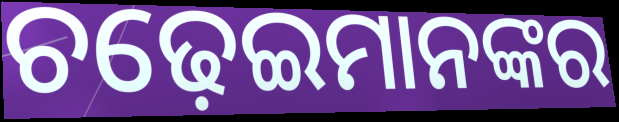
ଚଢ଼େଇମାନଙ୍କର